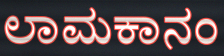
ಲಾಮಕಾನಂ